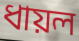
ধায়ল